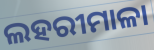
ଲହରୀମାଳା